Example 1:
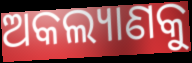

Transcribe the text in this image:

ଅକଲ୍ୟାଣକୁ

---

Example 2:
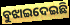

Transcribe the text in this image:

ବୁଝାଇଦେଇଛି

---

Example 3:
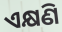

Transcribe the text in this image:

ଏକ୍ଷଣି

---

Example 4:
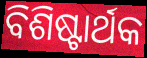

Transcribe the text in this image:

ବିଶିଷ୍ଟାର୍ଥକ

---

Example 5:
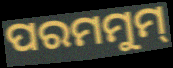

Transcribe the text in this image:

ପରମମୁମ୍